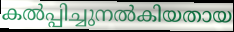
കൽപ്പിച്ചുനൽകിയതായ